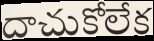
దాచుకోలేక